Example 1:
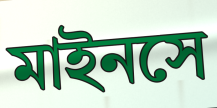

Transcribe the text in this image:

মাইনসে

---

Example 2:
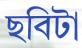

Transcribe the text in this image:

ছবিটা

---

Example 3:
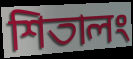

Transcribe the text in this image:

শিতালং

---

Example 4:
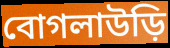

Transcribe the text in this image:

বোগলাউড়ি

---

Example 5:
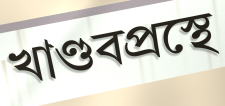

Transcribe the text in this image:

খাণ্ডবপ্রস্থে